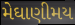
મેઘાણીમય